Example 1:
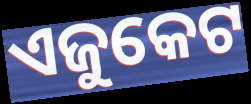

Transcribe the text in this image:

ଏଜୁକେଟ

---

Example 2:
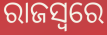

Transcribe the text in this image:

ରାଜସ୍ବରେ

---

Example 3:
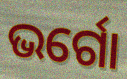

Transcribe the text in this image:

ଭର୍ଗୋ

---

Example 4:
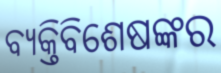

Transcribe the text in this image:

ବ୍ୟକ୍ତିବିଶେଷଙ୍କର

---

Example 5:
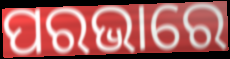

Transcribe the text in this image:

ପରଭାରେ